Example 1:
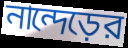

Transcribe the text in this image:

নান্দেড়ের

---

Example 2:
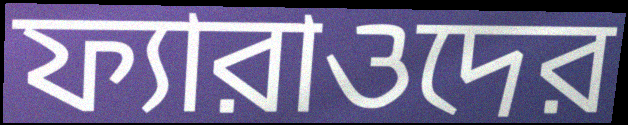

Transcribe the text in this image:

ফ্যারাওদের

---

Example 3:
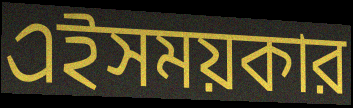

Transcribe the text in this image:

এইসময়কার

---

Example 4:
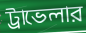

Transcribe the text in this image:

ট্রাভেলার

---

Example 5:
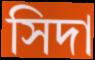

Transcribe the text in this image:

সিদা